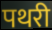
पथरी